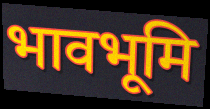
भावभूमि